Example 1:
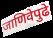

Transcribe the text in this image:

जाणिवेपुढे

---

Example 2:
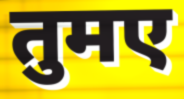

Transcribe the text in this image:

तुमए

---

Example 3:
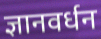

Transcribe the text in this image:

ज्ञानवर्धन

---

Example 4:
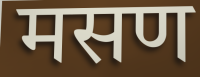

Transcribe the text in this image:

मसण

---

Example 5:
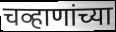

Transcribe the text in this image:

चव्हाणांच्या